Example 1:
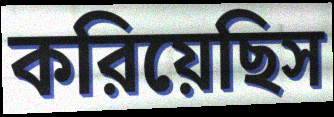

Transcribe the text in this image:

করিয়েছিস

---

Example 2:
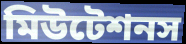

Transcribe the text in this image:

মিউটেশনস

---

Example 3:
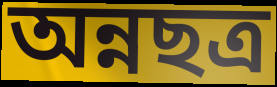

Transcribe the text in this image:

অন্নছত্র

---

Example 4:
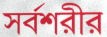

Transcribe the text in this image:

সর্বশরীর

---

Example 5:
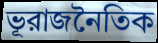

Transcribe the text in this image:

ভূরাজনৈতিক